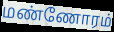
மண்ணோரம்